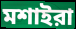
মশাইরা